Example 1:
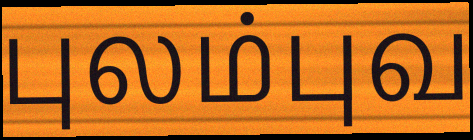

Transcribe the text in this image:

புலம்புவ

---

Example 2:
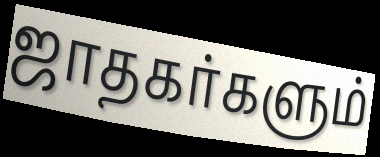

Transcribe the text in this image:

ஜாதகர்களும்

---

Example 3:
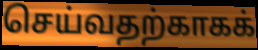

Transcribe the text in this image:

செய்வதற்காகக்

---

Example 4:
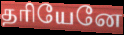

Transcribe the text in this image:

தரியேனே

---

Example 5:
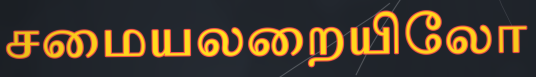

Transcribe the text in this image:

சமையலறையிலோ